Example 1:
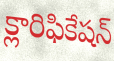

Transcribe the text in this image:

క్లారిఫికేషన్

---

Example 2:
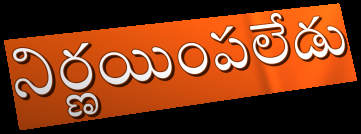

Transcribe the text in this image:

నిర్ణయింపలేడు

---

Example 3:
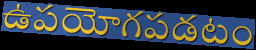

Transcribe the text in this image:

ఉపయోగపడటం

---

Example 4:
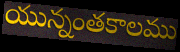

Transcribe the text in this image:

యున్నంతకాలము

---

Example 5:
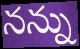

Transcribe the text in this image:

నన్ను